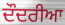
ਦੌਦਰੀਆ